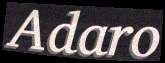
Adaro